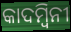
କାଦମ୍ୱିନୀ